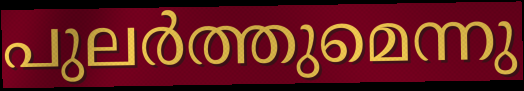
പുലർത്തുമെന്നു